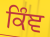
ਕਿੰਞ